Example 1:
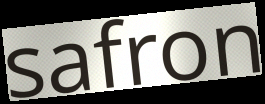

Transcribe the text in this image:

safron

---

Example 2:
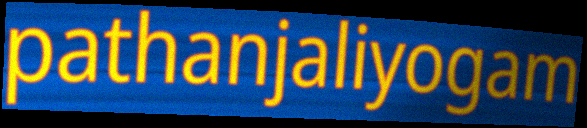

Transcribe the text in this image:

pathanjaliyogam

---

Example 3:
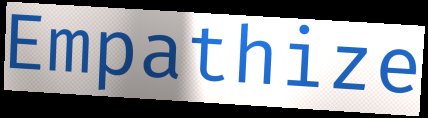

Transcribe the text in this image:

Empathize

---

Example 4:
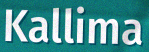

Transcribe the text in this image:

Kallima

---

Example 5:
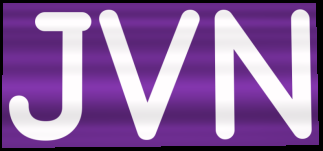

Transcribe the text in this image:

JVN